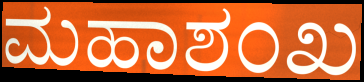
ಮಹಾಶಂಖ